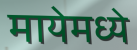
मायेमध्ये